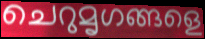
ചെറുമൃഗങ്ങളെ